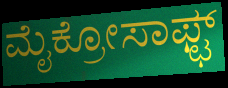
ಮೈಕ್ರೋಸಾಫ್ಟ್